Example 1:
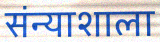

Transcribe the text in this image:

संन्याशाला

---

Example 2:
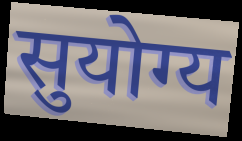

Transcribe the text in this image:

सुयोग्य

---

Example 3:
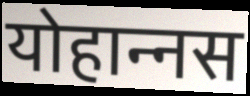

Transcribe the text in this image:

योहान्नस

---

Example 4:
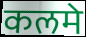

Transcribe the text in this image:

कलमे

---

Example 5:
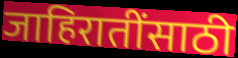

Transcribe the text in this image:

जाहिरातींसाठी